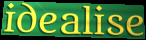
idealise